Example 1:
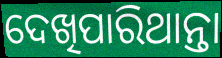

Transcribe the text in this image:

ଦେଖିପାରିଥାନ୍ତା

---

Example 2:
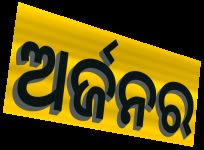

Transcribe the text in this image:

ଅର୍ଜନର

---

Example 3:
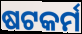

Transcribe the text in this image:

ଷଟକର୍ମ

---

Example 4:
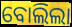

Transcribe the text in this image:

ବୋଲିଲା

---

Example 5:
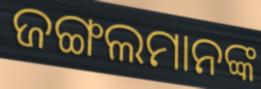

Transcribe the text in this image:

ଜଙ୍ଗଲମାନଙ୍କ